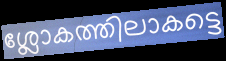
ശ്ലോകത്തിലാകട്ടെ